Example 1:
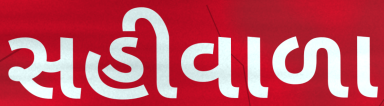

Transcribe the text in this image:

સહીવાળા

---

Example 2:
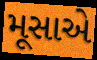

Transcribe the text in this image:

મૂસાએ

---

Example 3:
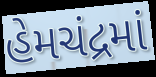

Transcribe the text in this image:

હેમચંદ્રમાં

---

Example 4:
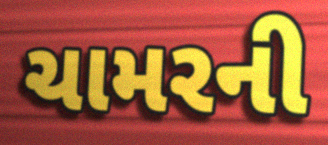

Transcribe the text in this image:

ચામરની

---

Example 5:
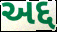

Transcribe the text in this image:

અદ્દ